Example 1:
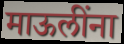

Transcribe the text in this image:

माऊलींना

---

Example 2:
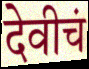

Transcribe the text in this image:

देवीचं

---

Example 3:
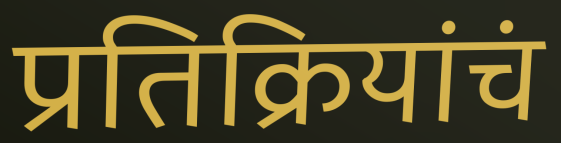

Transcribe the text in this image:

प्रतिक्रियांचं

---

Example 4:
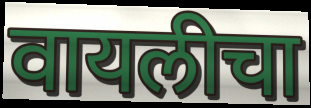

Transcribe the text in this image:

वायलीचा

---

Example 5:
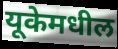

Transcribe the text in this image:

यूकेमधील